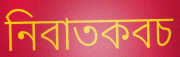
নিবাতকবচ